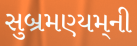
સુબ્રમણ્યમ્‌ની